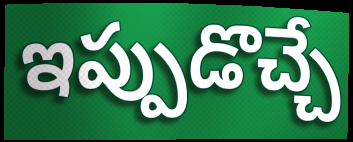
ఇప్పుడొచ్చే